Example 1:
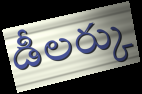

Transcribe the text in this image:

డీలర్కు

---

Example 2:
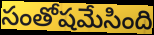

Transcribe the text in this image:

సంతోషమేసింది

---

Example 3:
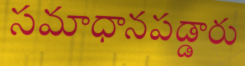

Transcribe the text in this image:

సమాధానపడ్డారు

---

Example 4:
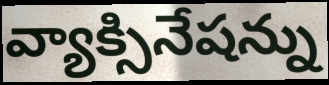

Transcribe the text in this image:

వ్యాక్సినేషన్ను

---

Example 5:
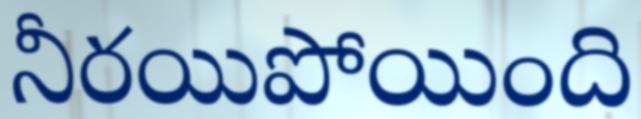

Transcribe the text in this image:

నీరయిపోయింది